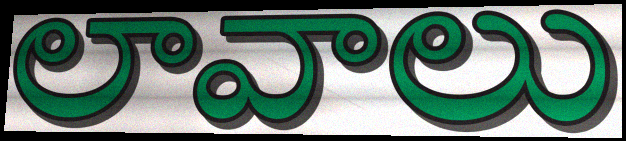
లావాలు